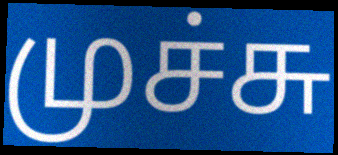
முச்சு